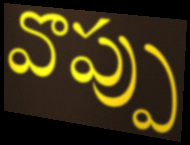
వొప్పు